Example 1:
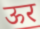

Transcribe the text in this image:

ऊर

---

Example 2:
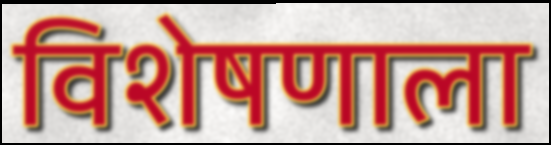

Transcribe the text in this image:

विशेषणाला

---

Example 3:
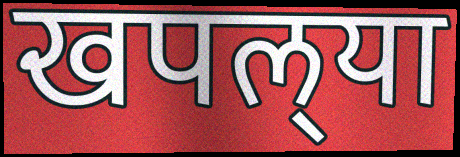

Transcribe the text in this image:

खपल्या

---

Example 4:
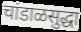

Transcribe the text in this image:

चांडाळसुद्धा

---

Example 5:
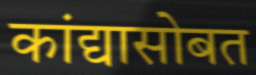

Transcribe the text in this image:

कांद्यासोबत